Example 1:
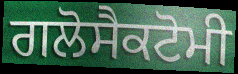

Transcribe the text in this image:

ਗਲੋਸੈਕਟੋਮੀ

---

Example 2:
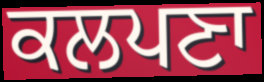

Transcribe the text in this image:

ਕਲਪਣਾ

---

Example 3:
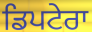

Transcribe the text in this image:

ਡਿਪਟੇਰਾ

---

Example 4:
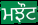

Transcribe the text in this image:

ਮਝੌਟ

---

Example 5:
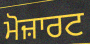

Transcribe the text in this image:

ਮੋਜ਼ਾਰਟ